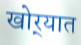
खोर्यात